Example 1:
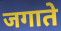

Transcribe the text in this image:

जगाते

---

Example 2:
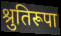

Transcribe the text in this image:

श्रुतिरूपा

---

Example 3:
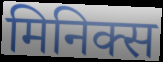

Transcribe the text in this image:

मिनिक्स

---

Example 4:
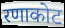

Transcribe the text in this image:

रणाकोट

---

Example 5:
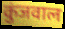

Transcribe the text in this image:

कुंजवाल